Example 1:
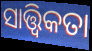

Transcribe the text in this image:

ସାତ୍ତ୍ବିକତା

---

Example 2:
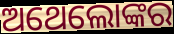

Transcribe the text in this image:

ଅଥେଲୋଙ୍କର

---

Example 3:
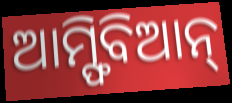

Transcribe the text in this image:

ଆମ୍ଫିବିଆନ୍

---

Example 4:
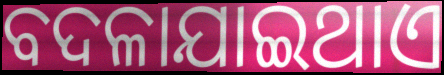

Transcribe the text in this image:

ବଦଳାଯାଇଥାଏ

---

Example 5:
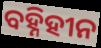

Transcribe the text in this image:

ବହ୍ନିହୀନ